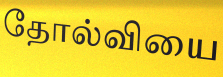
தோல்வியை